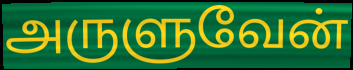
அருளுவேன்